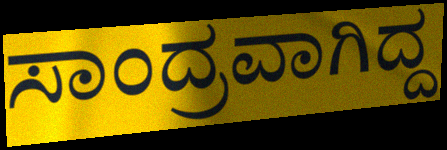
ಸಾಂದ್ರವಾಗಿದ್ದ